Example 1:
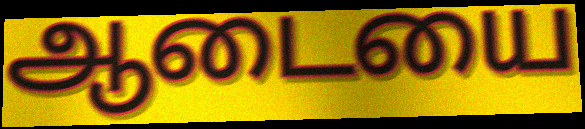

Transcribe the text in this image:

ஆடையை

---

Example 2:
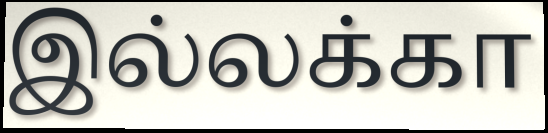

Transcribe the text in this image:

இல்லக்கா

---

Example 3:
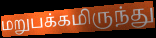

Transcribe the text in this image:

மறுபக்கமிருந்து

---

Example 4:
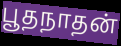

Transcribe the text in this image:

பூதநாதன்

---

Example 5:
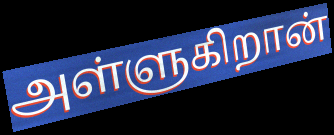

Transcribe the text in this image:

அள்ளுகிறான்